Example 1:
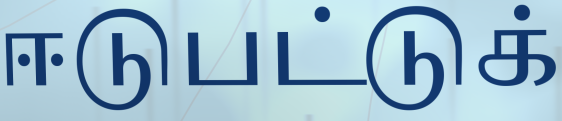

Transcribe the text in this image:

ஈடுபட்டுக்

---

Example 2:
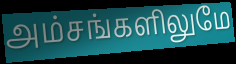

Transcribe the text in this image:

அம்சங்களிலுமே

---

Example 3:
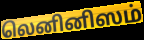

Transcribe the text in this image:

லெனினிஸம்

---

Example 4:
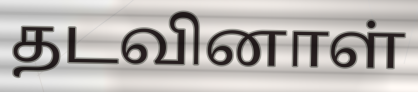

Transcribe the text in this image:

தடவினாள்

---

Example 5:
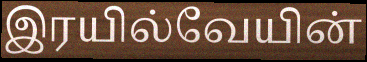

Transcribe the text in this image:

இரயில்வேயின்